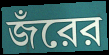
জঁরের